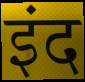
इंद